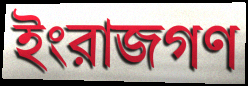
ইংরাজগণ